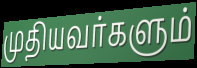
முதியவர்களும்